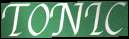
TONIC